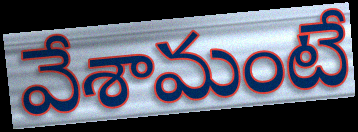
వేశామంటే